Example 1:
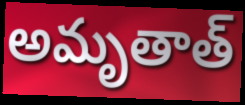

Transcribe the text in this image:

అమృతాత్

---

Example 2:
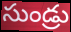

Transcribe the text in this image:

సుండ్రు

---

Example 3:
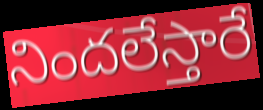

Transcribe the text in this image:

నిందలేస్తారే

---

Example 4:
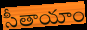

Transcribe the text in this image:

సీతాయాం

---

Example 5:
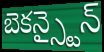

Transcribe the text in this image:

బెకన్స్టైన్